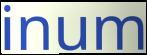
inum